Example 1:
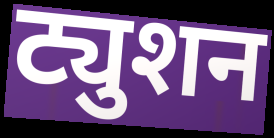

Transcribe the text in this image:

ट्युशन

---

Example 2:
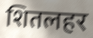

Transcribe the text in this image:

शितलहर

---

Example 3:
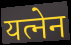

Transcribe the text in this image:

यत्नेन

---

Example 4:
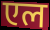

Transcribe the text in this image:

एल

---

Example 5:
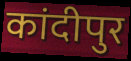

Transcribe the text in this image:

कांदीपुर